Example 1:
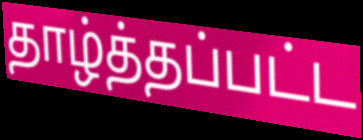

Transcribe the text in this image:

தாழ்த்தப்பட்ட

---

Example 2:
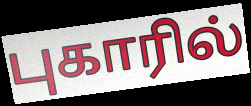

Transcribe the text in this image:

புகாரில்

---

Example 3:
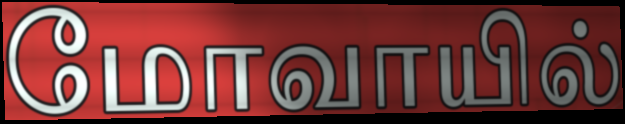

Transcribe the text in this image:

மோவாயில்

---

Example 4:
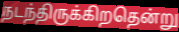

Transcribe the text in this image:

நடந்திருக்கிறதென்று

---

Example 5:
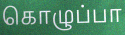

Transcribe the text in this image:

கொழுப்பா